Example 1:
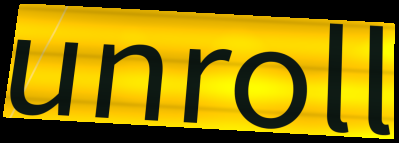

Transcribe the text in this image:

unroll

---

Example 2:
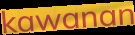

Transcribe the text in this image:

kawanan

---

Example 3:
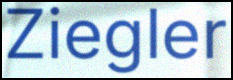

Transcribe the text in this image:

Ziegler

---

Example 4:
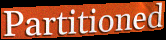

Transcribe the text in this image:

Partitioned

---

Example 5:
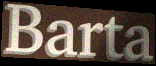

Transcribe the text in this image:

Barta